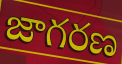
జాగరణ